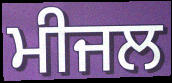
ਮੀਜਲ